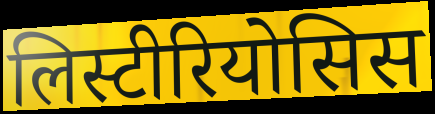
लिस्टीरियोसिस